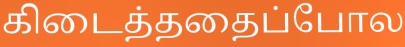
கிடைத்ததைப்போல